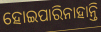
ହୋଇପାରିନାହାନ୍ତି